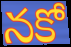
నకో